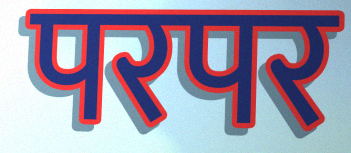
परपर